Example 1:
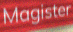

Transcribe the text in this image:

Magister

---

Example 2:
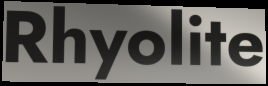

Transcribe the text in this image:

Rhyolite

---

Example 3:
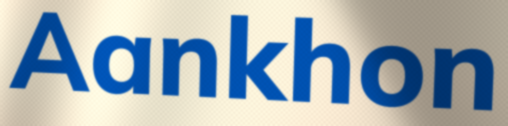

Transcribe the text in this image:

Aankhon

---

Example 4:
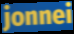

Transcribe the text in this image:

jonnei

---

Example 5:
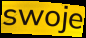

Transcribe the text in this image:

swoje